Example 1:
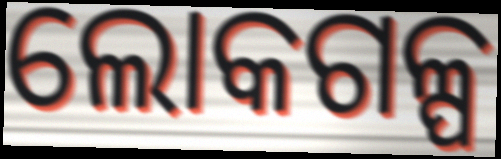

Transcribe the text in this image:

ଲୋକଗଳ୍ପ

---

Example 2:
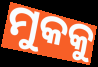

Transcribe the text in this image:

ମୁକକୁ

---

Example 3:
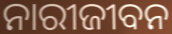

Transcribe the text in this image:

ନାରୀଜୀବନ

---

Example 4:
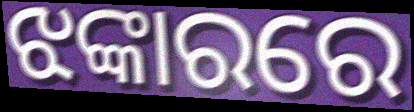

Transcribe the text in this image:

ଝଙ୍କାରରେ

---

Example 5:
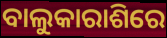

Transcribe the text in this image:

ବାଲୁକାରାଶିରେ